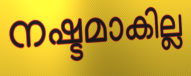
നഷ്ടമാകില്ല